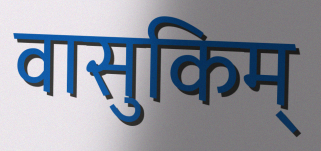
वासुकिम्